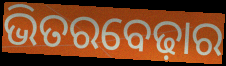
ଭିତରବେଢ଼ାର